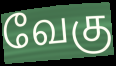
வேகு